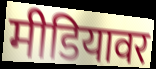
मीडियावर